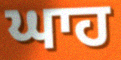
ਘਾਹ